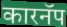
कारनॅप